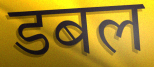
डबल